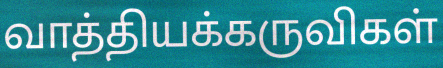
வாத்தியக்கருவிகள்